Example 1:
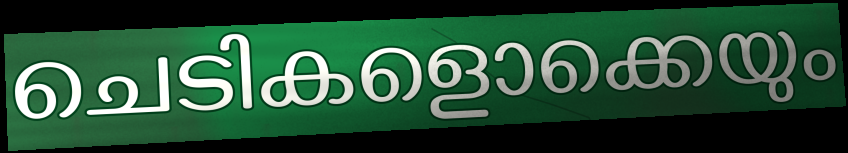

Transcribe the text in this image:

ചെടികളൊക്കെയും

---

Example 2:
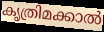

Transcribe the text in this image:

കൃത്രിമക്കാൽ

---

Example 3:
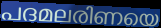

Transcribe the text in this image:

പദമലരിണയെ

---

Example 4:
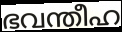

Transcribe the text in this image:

ഭവന്തീഹ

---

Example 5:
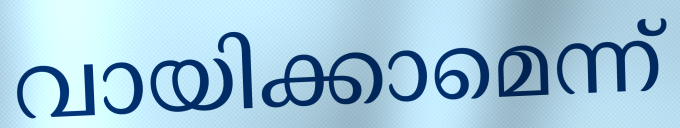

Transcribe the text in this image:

വായിക്കാമെന്ന്